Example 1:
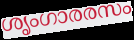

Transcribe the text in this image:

ശൃംഗാരരസം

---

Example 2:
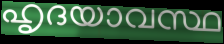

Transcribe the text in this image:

ഹൃദയാവസ്ഥ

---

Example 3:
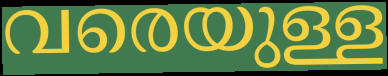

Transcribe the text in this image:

വരെയുള്ള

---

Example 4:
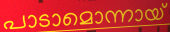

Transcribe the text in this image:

പാടാമൊന്നായ്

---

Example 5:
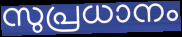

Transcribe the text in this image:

സുപ്രധാനം